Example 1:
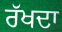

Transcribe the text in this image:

ਰੱਖਦਾ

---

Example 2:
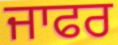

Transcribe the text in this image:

ਜਾਫਰ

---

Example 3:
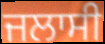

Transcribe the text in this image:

ਜਲਾਸੀ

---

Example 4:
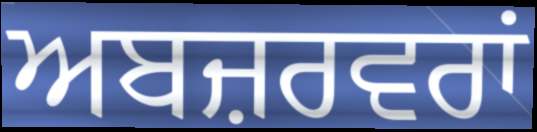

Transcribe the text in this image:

ਅਬਜ਼ਰਵਰਾਂ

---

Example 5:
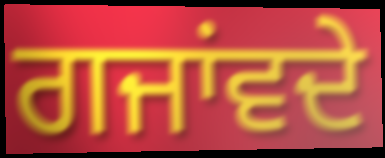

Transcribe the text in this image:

ਗਜਾਂਵਦੇ